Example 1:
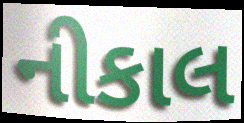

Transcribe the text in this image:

નીકાલ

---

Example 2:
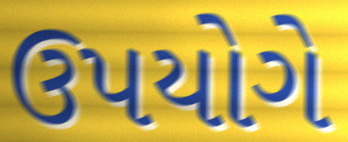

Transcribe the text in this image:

ઉપયોગે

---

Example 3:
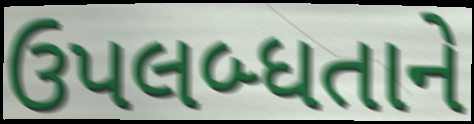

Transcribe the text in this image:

ઉપલબ્ધતાને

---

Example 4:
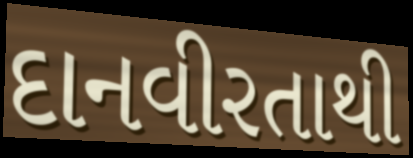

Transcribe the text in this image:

દાનવીરતાથી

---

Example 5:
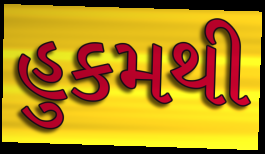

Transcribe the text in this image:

હુકમથી